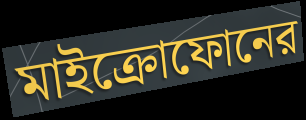
মাইক্রোফোনের